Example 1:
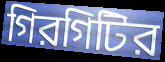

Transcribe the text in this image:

গিরগিটির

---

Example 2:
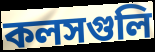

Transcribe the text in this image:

কলসগুলি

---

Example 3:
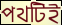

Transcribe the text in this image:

পথটিই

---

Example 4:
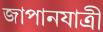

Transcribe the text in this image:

জাপানযাত্রী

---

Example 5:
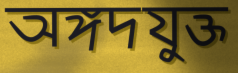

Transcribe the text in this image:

অঙ্গদযুক্ত